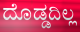
ದೊಡ್ಡದಿಲ್ಲ